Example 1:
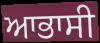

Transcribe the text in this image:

ਆਭਾਸੀ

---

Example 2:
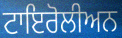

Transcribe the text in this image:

ਟਾਇਰੋਲੀਅਨ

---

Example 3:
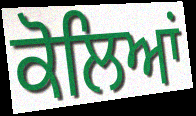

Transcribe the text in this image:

ਕੋਲਿਆਂ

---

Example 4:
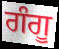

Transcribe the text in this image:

ਗੰਗੂ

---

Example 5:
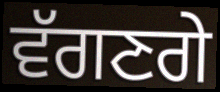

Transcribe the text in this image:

ਵੱਗਣਗੇ